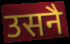
उसनै